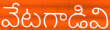
వేటగాడివి